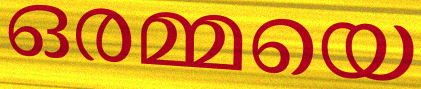
ഒരമ്മയെ